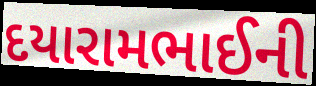
દયારામભાઈની